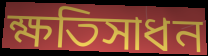
ক্ষতিসাধন